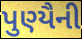
પુણ્યૈની